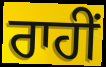
ਰਾਹੀਂ